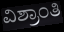
ವಿಶ್ರಾಂತಿ